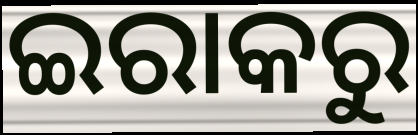
ଇରାକରୁ